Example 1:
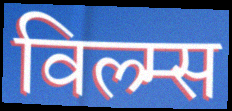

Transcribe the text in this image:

विल्म्स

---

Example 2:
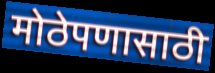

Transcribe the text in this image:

मोठेपणासाठी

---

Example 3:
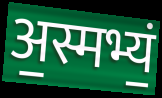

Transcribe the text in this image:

अ॒स्मभ्यं॒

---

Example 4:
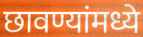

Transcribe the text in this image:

छावण्यांमध्ये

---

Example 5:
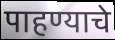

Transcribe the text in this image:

पाहण्याचे